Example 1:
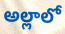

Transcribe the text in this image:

అల్లాలో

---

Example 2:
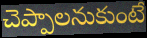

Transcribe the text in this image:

చెప్పాలనుకుంటే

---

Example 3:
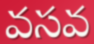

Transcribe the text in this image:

వసవ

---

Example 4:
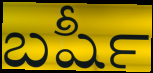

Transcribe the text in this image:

బషీర్‍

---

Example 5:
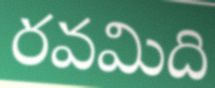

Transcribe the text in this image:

రవమిది